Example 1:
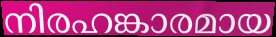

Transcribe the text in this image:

നിരഹങ്കാരമായ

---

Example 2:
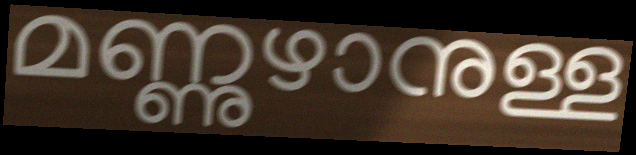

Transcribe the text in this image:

മണ്ണുഴാനുള്ള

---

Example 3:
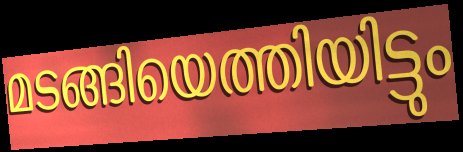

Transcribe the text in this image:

മടങ്ങിയെത്തിയിട്ടും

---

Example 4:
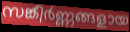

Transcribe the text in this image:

സങ്കീർണ്ണങ്ങളായ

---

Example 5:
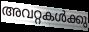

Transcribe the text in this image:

അവറ്റകൾക്കു